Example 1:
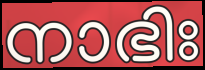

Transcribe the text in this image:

നാഭിഃ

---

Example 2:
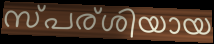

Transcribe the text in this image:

സ്പര്ശിയായ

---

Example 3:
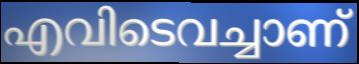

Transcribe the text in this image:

എവിടെവച്ചാണ്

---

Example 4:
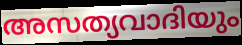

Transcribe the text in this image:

അസത്യവാദിയും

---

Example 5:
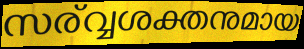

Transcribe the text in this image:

സര്വ്വശക്തനുമായ